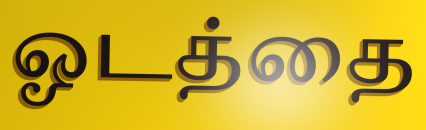
ஓடத்தை